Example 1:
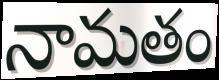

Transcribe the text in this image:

నామతం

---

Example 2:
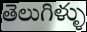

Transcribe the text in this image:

తెలుగిళ్ళు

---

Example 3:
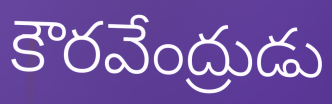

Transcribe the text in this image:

కౌరవేంద్రుడు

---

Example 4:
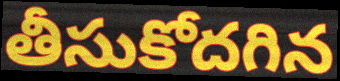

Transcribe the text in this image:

తీసుకోదగిన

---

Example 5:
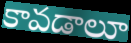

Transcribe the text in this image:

కావడాలూ